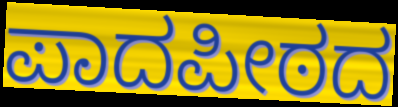
ಪಾದಪೀಠದ